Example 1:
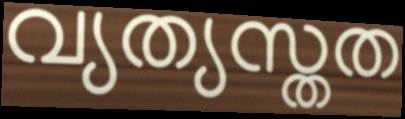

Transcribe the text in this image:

വ്യത്യസ്തത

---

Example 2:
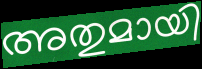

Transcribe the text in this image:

അതുമായി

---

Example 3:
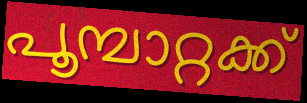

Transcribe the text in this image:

പൂമ്പാറ്റക്ക്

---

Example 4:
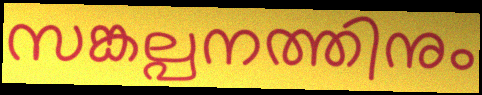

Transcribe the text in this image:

സങ്കല്പനത്തിനും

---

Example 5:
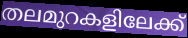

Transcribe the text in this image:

തലമുറകളിലേക്ക്